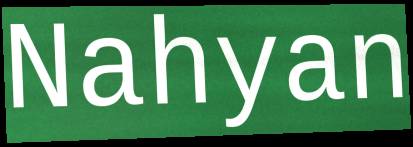
Nahyan